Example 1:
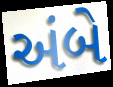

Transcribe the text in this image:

અંબે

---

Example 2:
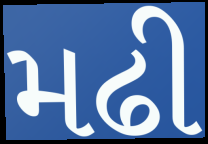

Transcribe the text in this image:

મઢી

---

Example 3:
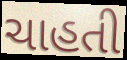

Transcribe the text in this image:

ચાહતી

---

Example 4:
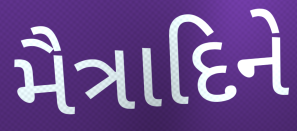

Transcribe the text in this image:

મૈત્રાદિને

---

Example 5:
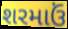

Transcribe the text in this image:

શરમાઉં